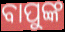
ବାପୁଙ୍କ